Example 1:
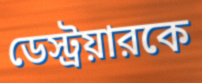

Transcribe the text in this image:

ডেস্ট্রয়ারকে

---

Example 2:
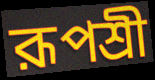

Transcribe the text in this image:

রূপশ্রী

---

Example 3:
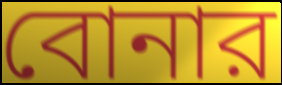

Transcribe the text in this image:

বোনার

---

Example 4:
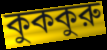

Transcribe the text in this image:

কুককুরু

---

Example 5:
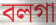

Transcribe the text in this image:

বলগা